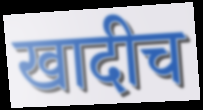
खादीच